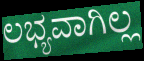
ಲಭ್ಯವಾಗಿಲ್ಲ